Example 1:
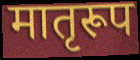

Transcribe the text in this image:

मातृरूप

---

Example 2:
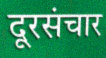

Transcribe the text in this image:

दूरसंचार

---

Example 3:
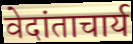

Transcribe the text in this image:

वेदांताचार्य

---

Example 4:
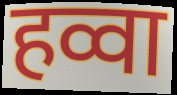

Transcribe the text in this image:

हव्वा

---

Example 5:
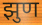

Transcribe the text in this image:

झुण